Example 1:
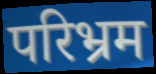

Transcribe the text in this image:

परिभ्रम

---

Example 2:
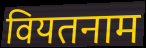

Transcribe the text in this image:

वियतनाम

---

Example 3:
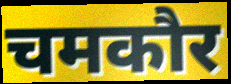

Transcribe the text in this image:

चमकौर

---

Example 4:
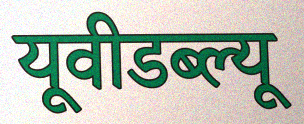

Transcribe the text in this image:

यूवीडब्ल्यू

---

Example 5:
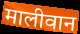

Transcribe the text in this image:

मालीवान